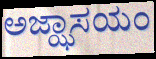
ಅಜ್ಝಾಸಯಂ